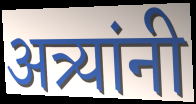
अत्र्यांनी